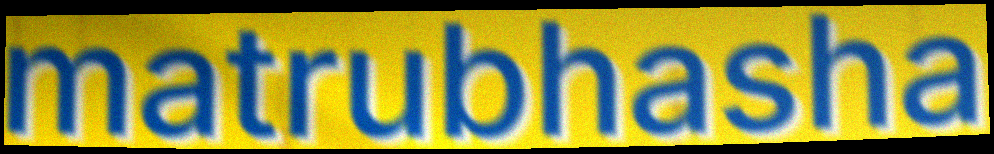
matrubhasha